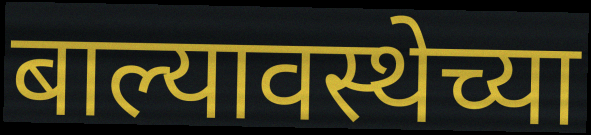
बाल्यावस्थेच्या